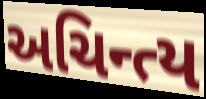
અચિન્ત્ય